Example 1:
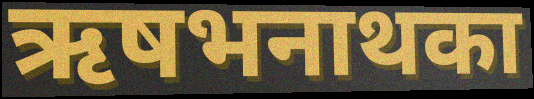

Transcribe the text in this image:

ऋषभनाथका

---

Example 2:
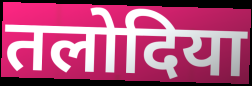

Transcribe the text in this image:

तलोदिया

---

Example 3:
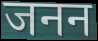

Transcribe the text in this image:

जनन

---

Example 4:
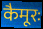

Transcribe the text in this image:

कैमूरः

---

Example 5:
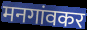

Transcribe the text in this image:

मनगांवकर